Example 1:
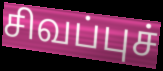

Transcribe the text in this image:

சிவப்புச்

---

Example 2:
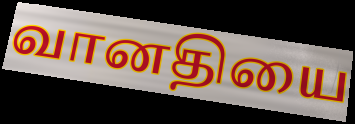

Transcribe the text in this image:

வானதியை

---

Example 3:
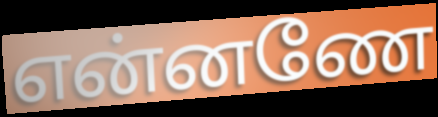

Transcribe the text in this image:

என்னணே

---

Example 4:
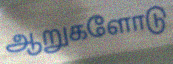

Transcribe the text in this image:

ஆறுகளோடு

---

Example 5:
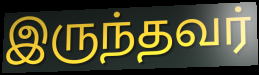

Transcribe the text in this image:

இருந்தவர்